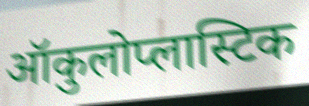
ऑकुलोप्लास्टिक